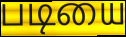
படியை